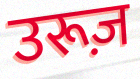
उरूज़